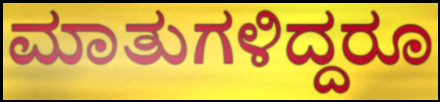
ಮಾತುಗಳಿದ್ದರೂ